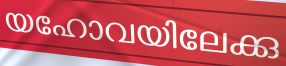
യഹോവയിലേക്കു